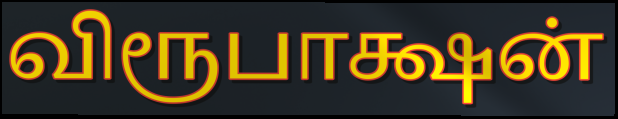
விரூபாக்ஷன்